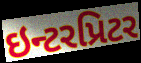
ઇન્ટરપ્રિટર